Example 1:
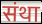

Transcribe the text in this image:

संथा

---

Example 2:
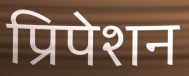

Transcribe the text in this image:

प्रिपेशन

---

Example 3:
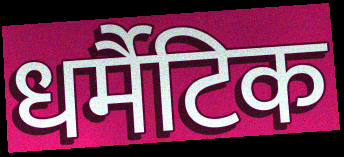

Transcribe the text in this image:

धर्मैटिक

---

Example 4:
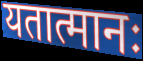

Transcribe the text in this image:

यतात्मानः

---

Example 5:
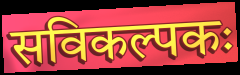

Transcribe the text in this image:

सविकल्पकः